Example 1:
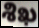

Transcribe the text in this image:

శిఖ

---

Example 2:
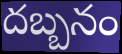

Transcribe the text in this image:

దబ్బనం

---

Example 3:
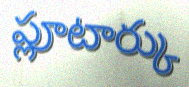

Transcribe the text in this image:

ప్లూటార్కు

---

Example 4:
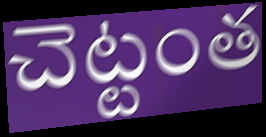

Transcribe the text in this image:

చెట్టంత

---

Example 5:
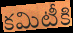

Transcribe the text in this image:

కమిటీకి